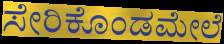
ಸೇರಿಕೊಂಡಮೇಲೆ